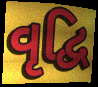
વૃદ્વિ